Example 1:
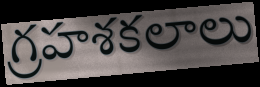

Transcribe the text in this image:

గ్రహశకలాలు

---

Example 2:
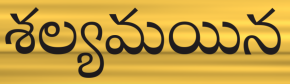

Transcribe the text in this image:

శల్యమయిన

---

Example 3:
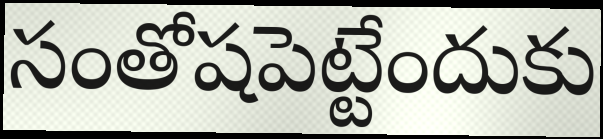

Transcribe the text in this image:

సంతోషపెట్టేందుకు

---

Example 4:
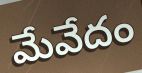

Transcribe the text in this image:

మేవేదం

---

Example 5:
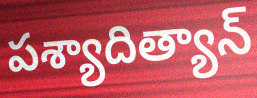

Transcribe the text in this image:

పశ్యాదిత్యాన్